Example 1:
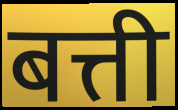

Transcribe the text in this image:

बत्ती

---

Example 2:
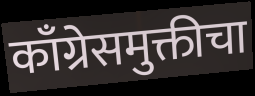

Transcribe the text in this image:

काँग्रेसमुक्तीचा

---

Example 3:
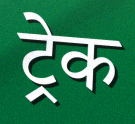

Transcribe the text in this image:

ट्रेक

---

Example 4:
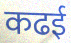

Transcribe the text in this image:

कढई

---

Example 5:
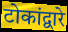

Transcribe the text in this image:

टोकांद्वारे